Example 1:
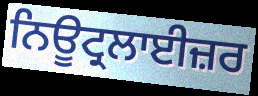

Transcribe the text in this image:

ਨਿਊਟ੍ਰਲਾਈਜ਼ਰ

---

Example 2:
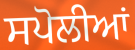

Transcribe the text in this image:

ਸਪੋਲੀਆਂ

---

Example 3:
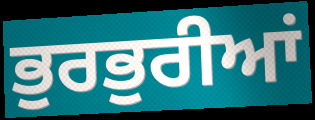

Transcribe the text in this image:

ਭੁਰਭੁਰੀਆਂ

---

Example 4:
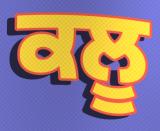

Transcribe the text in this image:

ਕਲੂ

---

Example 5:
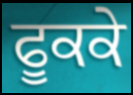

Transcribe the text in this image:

ਫੂਕਕੇ